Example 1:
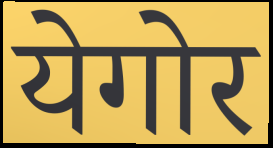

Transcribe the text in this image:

येगोर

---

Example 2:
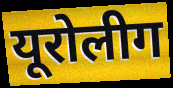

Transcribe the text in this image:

यूरोलीग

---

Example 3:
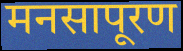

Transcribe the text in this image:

मनसापूरण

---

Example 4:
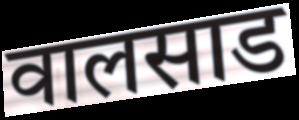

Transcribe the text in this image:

वालसाड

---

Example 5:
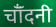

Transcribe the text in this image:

चॉँदनी